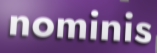
nominis